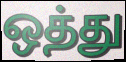
ஒத்து